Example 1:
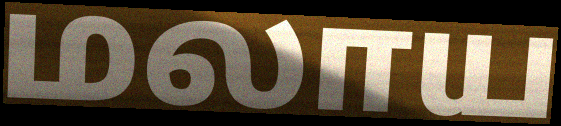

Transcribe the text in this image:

மலாய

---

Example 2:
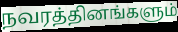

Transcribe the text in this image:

நவரத்தினங்களும்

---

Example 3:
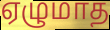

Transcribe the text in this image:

ஏழுமாத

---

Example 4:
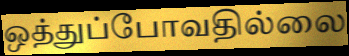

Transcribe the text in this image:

ஒத்துப்போவதில்லை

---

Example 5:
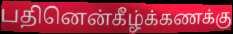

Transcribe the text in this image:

பதினென்கீழ்க்கணக்கு